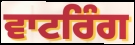
ਵਾਟਰਿੰਗ